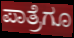
ಪಾತ್ರೆಗೂ